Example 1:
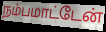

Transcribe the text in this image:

நம்பமாட்டேன்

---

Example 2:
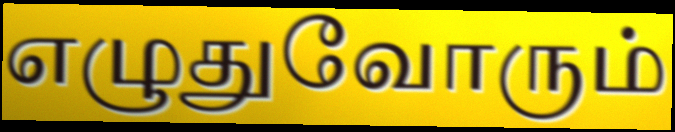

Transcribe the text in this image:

எழுதுவோரும்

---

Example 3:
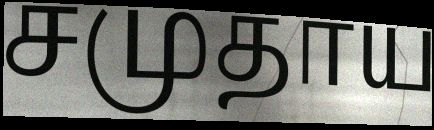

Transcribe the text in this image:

சமுதாய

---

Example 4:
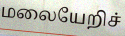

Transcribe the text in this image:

மலையேறிச்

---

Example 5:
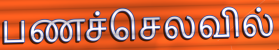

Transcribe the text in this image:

பணச்செலவில்